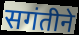
सगंतीने